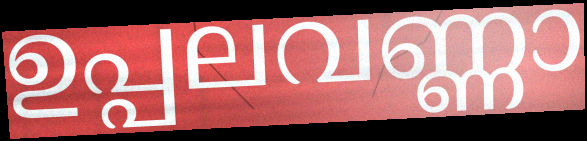
ഉപ്പലവണ്ണാ